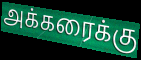
அக்கரைக்கு